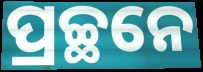
ପ୍ରଚ୍ଛନେ